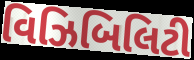
વિઝિબિલિટી